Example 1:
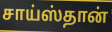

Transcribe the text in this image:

சாய்ஸ்தான்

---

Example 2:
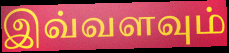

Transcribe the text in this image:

இவ்வளவும்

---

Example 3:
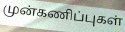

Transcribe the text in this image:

முன்கணிப்புகள்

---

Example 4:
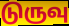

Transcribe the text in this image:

டுருவு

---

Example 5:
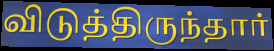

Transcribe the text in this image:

விடுத்திருந்தார்